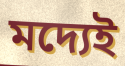
মদ্যেই